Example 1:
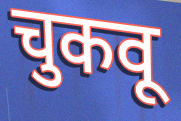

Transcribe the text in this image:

चुकवू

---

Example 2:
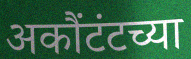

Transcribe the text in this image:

अकौंटंटच्या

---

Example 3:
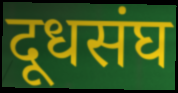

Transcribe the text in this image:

दूधसंघ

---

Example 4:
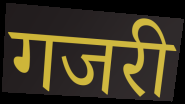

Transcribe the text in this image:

गजरी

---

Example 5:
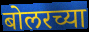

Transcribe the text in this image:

बोलरच्या